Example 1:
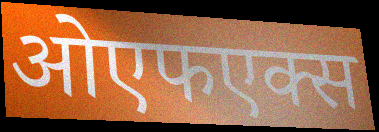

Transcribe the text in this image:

ओएफएक्स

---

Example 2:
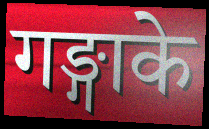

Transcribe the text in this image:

गङ्गाके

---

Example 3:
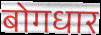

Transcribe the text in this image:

बोगधार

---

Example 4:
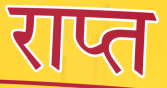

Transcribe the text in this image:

राप्त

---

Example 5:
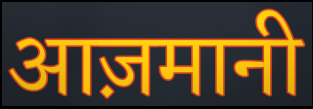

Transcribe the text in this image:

आज़मानी